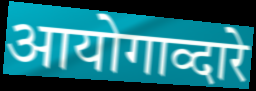
आयोगाव्दारे